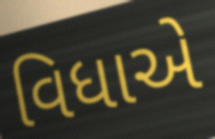
વિધાએ